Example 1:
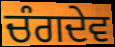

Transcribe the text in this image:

ਚੰਗਦੇਵ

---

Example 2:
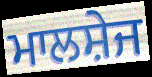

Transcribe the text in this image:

ਮਾਲਸ਼ੇਜ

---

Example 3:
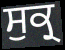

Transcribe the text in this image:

ਸੁਕ੍ਰ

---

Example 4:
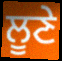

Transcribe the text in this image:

ਲੂਣੇ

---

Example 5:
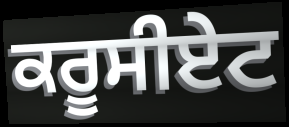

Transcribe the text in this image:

ਕਰੂਸੀਏਟ